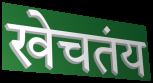
खेचतंय